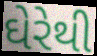
ઘેરેથી